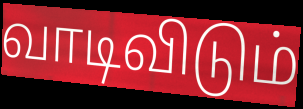
வாடிவிடும்